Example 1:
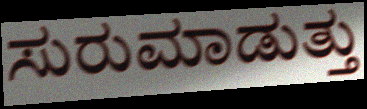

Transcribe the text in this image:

ಸುರುಮಾಡುತ್ತು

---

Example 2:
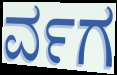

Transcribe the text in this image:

ರ್ವಗ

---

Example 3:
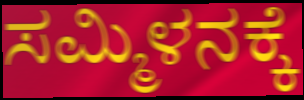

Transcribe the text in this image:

ಸಮ್ಮಿಳನಕ್ಕೆ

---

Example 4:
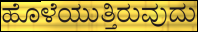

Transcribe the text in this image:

ಹೊಳೆಯುತ್ತಿರುವುದು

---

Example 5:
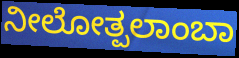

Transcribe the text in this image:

ನೀಲೋತ್ಪಲಾಂಬಾ